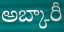
అబ్కారీ